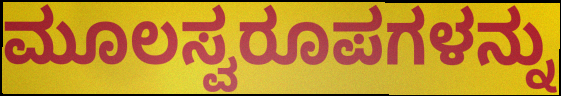
ಮೂಲಸ್ವರೂಪಗಳನ್ನು